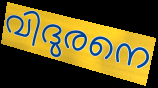
വിദുരനെ